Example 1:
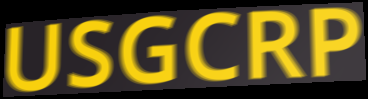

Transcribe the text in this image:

USGCRP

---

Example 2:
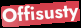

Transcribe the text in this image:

Offisusty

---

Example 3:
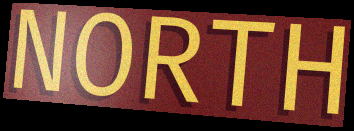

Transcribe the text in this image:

NORTH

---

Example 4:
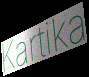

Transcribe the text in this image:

Kartika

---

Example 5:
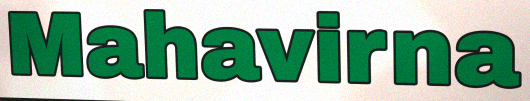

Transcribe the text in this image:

Mahavirna